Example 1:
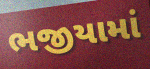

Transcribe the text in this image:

ભજીયામાં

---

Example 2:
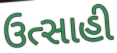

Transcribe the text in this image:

ઉત્સાહી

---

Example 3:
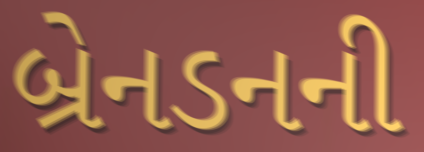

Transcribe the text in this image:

બ્રેનડનની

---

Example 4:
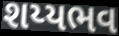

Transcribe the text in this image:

શય્યભવ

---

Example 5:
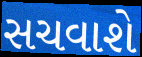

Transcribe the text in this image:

સચવાશે